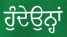
ਹੁੰਦੇਉਨ੍ਹਾਂ